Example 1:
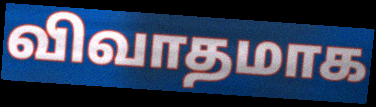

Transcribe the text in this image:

விவாதமாக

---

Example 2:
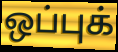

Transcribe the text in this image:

ஒப்புக்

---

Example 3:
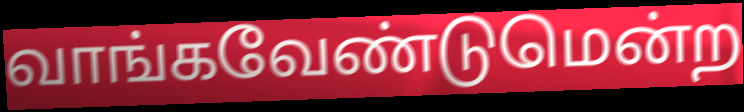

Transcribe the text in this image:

வாங்கவேண்டுமென்ற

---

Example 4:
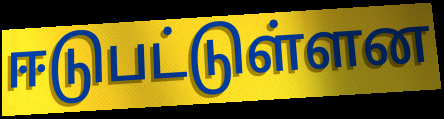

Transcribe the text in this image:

ஈடுபட்டுள்ளன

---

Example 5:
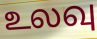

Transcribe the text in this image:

உலவு